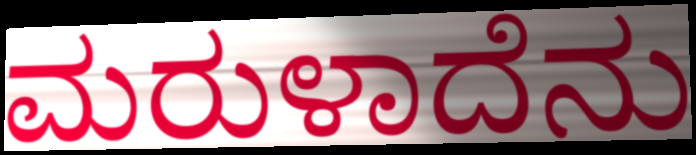
ಮರುಳಾದೆನು